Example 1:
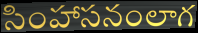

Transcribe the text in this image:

సింహాసనంలాగ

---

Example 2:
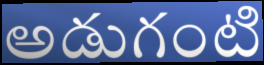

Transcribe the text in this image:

అడుగంటి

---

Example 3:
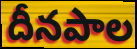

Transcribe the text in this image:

దీనపాల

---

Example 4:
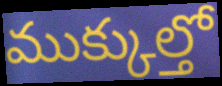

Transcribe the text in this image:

ముక్కుల్తో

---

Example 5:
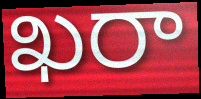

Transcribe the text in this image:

ఖరా